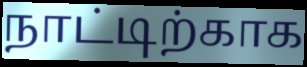
நாட்டிற்காக